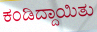
ಕಂಡಿದ್ದಾಯಿತು